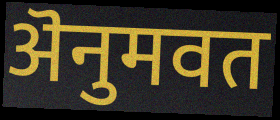
ऄनुमवत